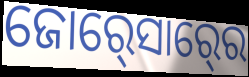
ଜୋର୍‍ସୋର୍‍ରେ